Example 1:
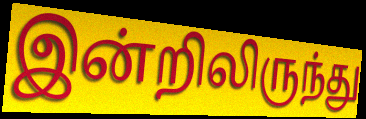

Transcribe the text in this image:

இன்றிலிருந்து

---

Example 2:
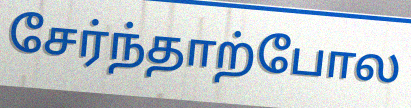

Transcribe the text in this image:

சேர்ந்தாற்போல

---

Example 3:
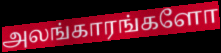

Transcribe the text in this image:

அலங்காரங்களோ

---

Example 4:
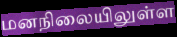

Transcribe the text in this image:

மனநிலையிலுள்ள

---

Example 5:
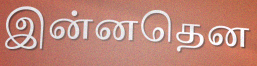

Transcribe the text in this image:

இன்னதென